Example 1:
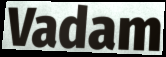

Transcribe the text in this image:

Vadam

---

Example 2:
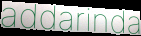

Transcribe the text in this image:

addarinda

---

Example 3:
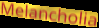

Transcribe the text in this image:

Melancholia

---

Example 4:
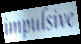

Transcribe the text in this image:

impulsive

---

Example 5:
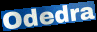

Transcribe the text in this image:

Odedra